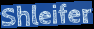
Shleifer